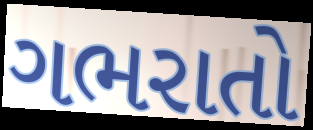
ગભરાતો